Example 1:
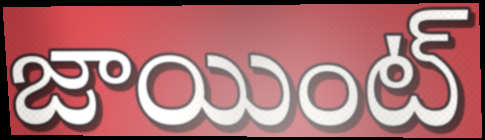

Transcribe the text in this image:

జాయింట్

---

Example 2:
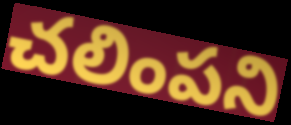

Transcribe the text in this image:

చలింపని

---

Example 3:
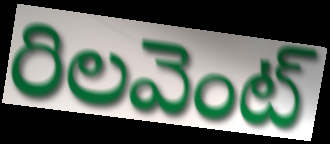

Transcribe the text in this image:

రిలవెంట్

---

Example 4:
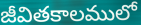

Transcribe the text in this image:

జీవితకాలములో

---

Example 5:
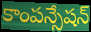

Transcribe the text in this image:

కాంపన్సేషన్